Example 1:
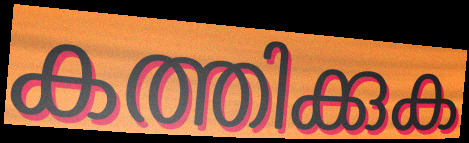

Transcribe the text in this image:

കത്തിക്കുക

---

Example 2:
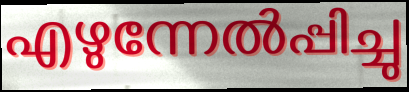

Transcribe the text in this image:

എഴുന്നേൽപ്പിച്ചു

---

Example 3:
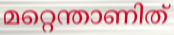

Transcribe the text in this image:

മറ്റെന്താണിത്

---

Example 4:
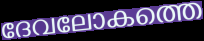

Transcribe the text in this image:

ദേവലോകത്തെ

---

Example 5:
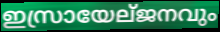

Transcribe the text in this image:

ഇസ്രായേല്ജനവും